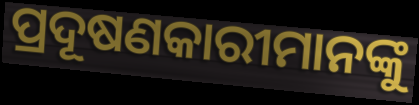
ପ୍ରଦୂଷଣକାରୀମାନଙ୍କୁ